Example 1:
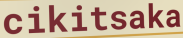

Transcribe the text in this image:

cikitsaka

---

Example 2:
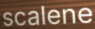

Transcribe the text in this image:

scalene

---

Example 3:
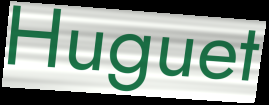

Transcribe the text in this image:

Huguet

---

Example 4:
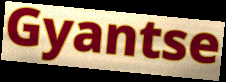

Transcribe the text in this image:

Gyantse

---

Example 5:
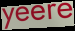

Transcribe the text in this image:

yeere